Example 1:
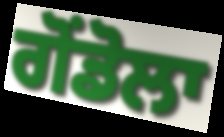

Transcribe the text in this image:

ਗੋਂਡੋਲਾ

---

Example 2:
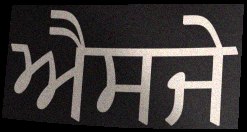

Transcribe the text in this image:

ਐਸਜੇ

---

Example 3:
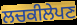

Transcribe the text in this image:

ਲਚਕੀਲੇਪਣ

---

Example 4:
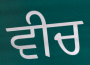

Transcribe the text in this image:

ਵੀਚ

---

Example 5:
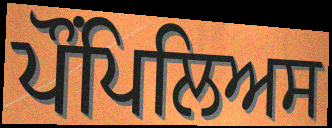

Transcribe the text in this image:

ਪੌਂਪਿਲਿਅਸ